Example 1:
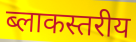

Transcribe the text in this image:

ब्लाकस्तरीय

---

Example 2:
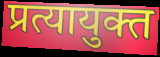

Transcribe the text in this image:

प्रत्यायुक्त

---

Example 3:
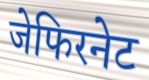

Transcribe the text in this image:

जेफिरनेट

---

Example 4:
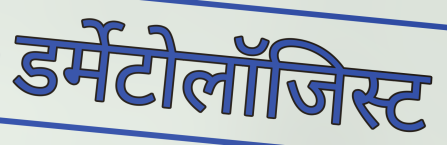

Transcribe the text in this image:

डर्मेटोलॉजिस्ट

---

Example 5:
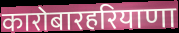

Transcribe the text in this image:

कारोबारहरियाणा